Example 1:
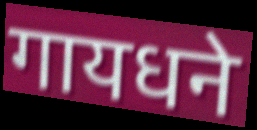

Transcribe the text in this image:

गायधने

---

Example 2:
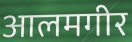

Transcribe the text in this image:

आलमगीर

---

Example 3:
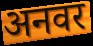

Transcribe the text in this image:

अनवर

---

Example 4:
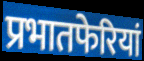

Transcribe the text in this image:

प्रभातफेरियां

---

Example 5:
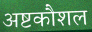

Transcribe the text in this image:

अष्टकौशल